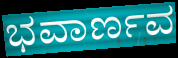
ಭವಾರ್ಣವ